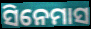
ସିନେମାସ